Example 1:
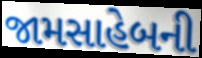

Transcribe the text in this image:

જામસાહેબની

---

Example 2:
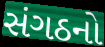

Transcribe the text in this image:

સંગઠનો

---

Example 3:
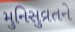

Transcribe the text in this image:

મુનિસુવ્રતને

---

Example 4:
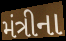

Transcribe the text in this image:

મંત્રીના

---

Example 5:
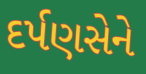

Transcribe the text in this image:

દર્પણસેને